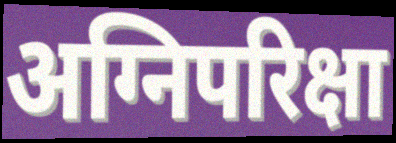
अग्निपरिक्षा